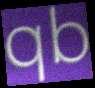
qb